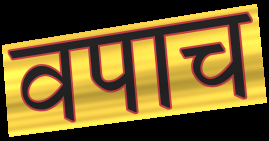
वपाच